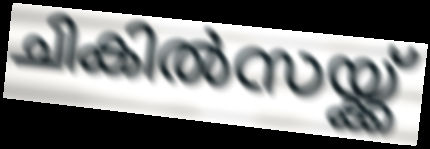
ചികിൽസയ്ക്ക്